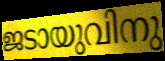
ജടായുവിനു